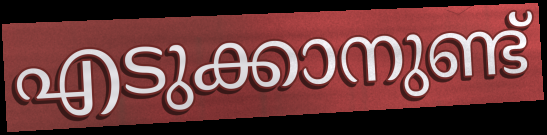
എടുക്കാനുണ്ട്